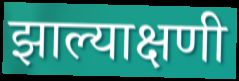
झाल्याक्षणी